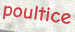
poultice